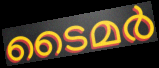
ടൈമർ